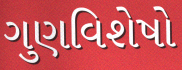
ગુણવિશેષો